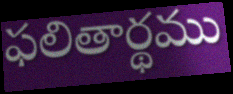
ఫలితార్థము